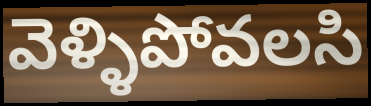
వెళ్ళిపోవలసి